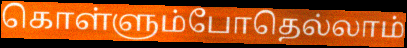
கொள்ளும்போதெல்லாம்